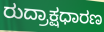
ರುದ್ರಾಕ್ಷಧಾರಣ